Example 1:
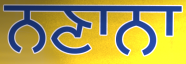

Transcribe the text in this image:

ਨਣਾਨਾ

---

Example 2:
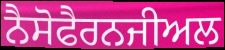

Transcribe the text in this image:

ਨੈਸੋਫੈਰਨਜੀਅਲ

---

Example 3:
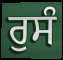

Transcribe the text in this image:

ਰੁਸੰ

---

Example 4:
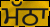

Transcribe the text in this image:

ਮੱਠਾ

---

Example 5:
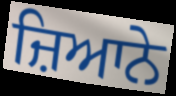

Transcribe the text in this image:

ਜ਼ਿਆਨੇ